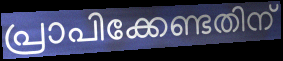
പ്രാപിക്കേണ്ടതിന്